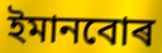
ইমানবোৰ